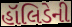
હૉલિડેની